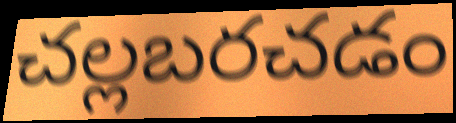
చల్లబరచడం